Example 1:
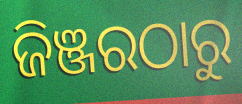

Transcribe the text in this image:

ଜିଞ୍ଜରଠାରୁ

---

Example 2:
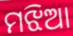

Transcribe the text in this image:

ମଝିଆ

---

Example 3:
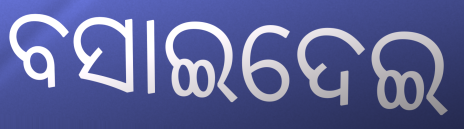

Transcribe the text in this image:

ବସାଇଦେଇ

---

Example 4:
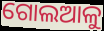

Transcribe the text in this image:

ଗୋଲଆଳୁ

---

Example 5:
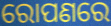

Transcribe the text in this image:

ରୋପଣରେ